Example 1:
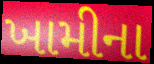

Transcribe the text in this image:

ખામીના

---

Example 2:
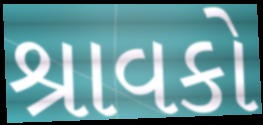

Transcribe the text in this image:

શ્રાવકો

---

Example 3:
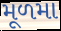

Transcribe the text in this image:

મૂળમા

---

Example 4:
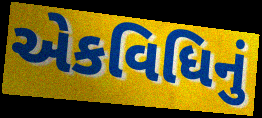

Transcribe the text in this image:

એકવિધિનું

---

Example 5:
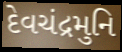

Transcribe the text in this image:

દેવચંદ્રમુનિ